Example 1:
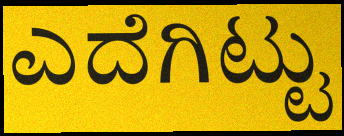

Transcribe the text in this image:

ಎದೆಗಿಟ್ಟು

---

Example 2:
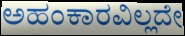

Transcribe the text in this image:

ಅಹಂಕಾರವಿಲ್ಲದೇ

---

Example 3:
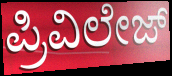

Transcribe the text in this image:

ಪ್ರಿವಿಲೇಜ್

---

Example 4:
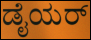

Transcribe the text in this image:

ಡೈಯರ್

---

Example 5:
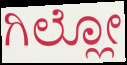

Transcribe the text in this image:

ಗಿಲ್ಲೋ